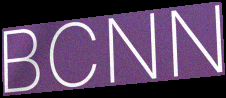
BCNN